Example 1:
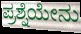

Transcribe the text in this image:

ಪ್ರಶ್ನೆಯೇನು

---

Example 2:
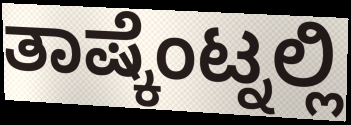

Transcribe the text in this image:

ತಾಷ್ಕೆಂಟ್ನಲ್ಲಿ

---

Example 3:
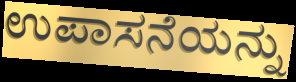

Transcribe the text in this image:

ಉಪಾಸನೆಯನ್ನು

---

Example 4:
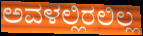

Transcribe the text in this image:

ಅವಳಲ್ಲಿರಲಿಲ್ಲ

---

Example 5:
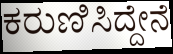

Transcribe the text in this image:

ಕರುಣಿಸಿದ್ದೇನೆ